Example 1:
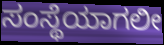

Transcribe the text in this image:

ಸಂಸ್ಥೆಯಾಗಲೀ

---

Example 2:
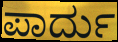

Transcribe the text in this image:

ಪಾರ್ದು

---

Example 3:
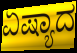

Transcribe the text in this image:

ಏಷ್ಯಾದ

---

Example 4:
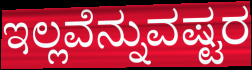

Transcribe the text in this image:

ಇಲ್ಲವೆನ್ನುವಷ್ಟರ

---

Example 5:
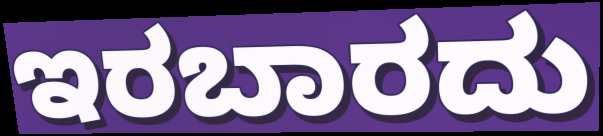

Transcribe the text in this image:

ಇರಬಾರದು